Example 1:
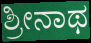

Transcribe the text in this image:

ಶ್ರೀನಾಥ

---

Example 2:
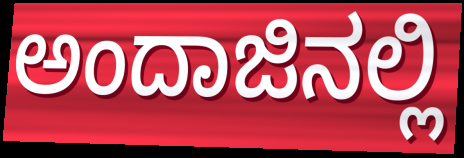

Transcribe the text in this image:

ಅಂದಾಜಿನಲ್ಲಿ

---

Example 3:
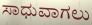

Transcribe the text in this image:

ಸಾಧುವಾಗಲು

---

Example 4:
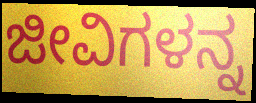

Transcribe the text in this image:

ಜೀವಿಗಳನ್ನ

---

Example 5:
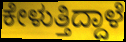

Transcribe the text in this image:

ಕೇಳುತ್ತಿದ್ದಾಳೆ